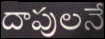
దాపులనే